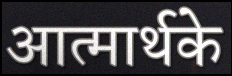
आत्मार्थके